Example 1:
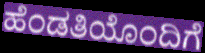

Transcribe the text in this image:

ಹೆಂಡತಿಯೊಂದಿಗೆ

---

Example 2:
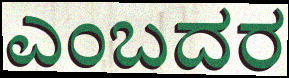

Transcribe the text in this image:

ಎಂಬದರ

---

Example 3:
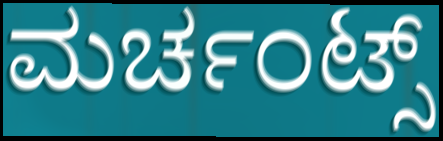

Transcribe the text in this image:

ಮರ್ಚಂಟ್ಸ್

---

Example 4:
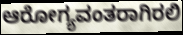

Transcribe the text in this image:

ಆರೋಗ್ಯವಂತರಾಗಿರಲಿ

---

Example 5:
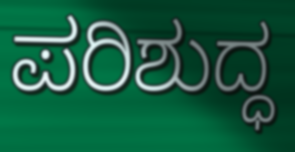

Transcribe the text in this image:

ಪರಿಶುದ್ಧ